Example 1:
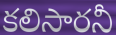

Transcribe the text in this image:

కలిసారనీ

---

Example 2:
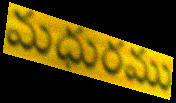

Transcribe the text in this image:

మధురము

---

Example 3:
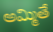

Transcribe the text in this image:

అమ్మితే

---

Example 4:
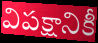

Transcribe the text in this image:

విపక్షానికీ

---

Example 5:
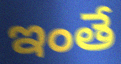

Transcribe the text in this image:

ఇంతే